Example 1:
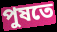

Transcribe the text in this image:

পুষতে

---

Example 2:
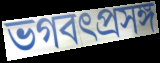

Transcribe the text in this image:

ভগবৎপ্রসঙ্গ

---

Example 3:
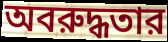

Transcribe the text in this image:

অবরুদ্ধতার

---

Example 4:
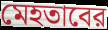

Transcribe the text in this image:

মেহতাবের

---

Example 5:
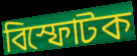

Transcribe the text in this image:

বিস্ফোটক